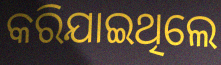
କରିଯାଇଥିଲେ